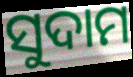
ସୁଦାମ